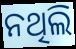
ନଥିଲି